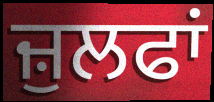
ਜ਼ੁਲਫਾਂ